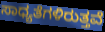
ಸಾಧ್ಯತೆಗಳಿರುತ್ತವೆ